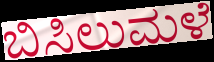
ಬಿಸಿಲುಮಳೆ